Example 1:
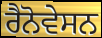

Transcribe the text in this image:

ਰੈਨੋਵੇਸਨ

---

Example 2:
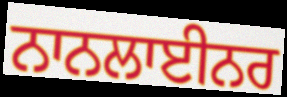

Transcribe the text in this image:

ਨਾਨਲਾਈਨਰ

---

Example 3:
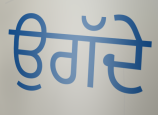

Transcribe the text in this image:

ਉਗੱਦੇ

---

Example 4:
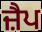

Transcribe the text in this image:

ਜ਼ੈਪ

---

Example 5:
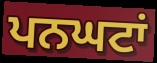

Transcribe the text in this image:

ਪਨਘਟਾਂ